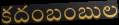
కదంబంబుల